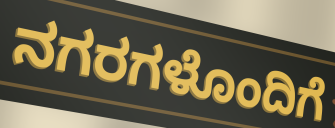
ನಗರಗಳೊಂದಿಗೆ